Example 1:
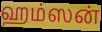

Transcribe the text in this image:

ஹம்ஸன்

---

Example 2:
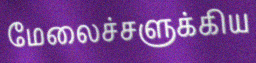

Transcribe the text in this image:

மேலைச்சளுக்கிய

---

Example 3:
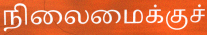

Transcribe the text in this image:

நிலைமைக்குச்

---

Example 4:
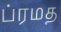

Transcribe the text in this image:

ப்ரமத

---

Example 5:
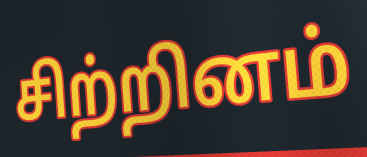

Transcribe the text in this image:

சிற்றினம்